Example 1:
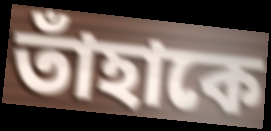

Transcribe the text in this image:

তাঁহাকে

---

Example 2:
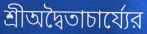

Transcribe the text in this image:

শ্রীঅদ্বৈতাচার্য্যের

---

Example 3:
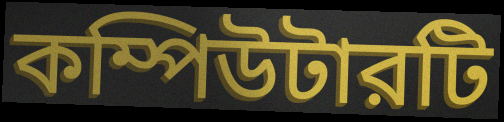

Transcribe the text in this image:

কম্পিউটারটি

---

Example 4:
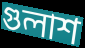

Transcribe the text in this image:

গুলাশ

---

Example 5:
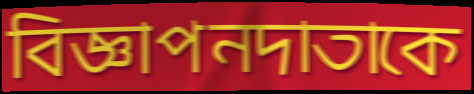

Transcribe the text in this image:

বিজ্ঞাপনদাতাকে